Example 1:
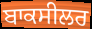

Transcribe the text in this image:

ਬਾਕਸੀਲਰ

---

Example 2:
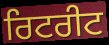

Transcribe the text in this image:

ਰਿਟਰੀਟ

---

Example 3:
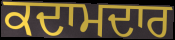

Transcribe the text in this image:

ਕਦਾਮਦਾਰ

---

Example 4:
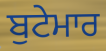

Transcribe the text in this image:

ਬੁਟੇਮਾਰ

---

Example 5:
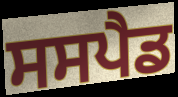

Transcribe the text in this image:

ਸਸਪੈਡ